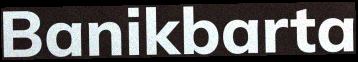
Banikbarta